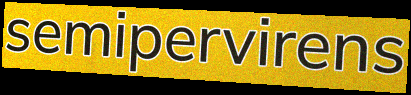
semipervirens